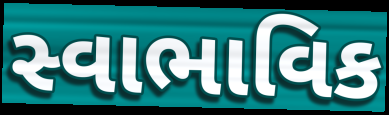
સ્વાભાવિક